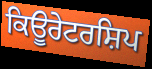
ਕਿਊਰੇਟਰਸ਼ਿਪ